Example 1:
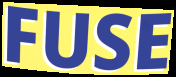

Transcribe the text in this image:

FUSE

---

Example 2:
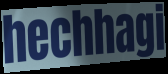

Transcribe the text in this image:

hechhagi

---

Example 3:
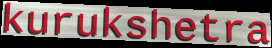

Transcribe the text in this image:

kurukshetra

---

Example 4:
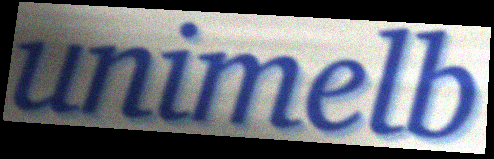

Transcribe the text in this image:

unimelb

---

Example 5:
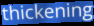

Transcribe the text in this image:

thickening